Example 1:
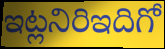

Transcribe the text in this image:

ఇట్లనిరిఇదిగో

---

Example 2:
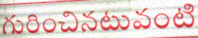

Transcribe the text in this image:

గురించినటువంటి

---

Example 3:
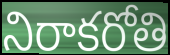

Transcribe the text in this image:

నిరాకరోతి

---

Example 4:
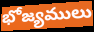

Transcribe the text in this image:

భోజ్యములు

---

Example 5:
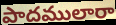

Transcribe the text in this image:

పాదములారా